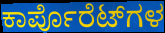
ಕಾರ್ಪೊರೆಟ್‌ಗಳ